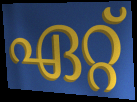
ഏറ്റ്